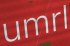
umrl